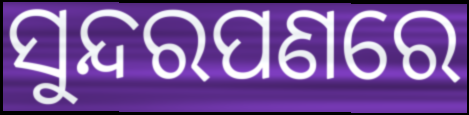
ସୁନ୍ଦରପଣରେ